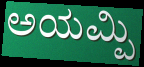
ಅಯಮ್ಪಿ